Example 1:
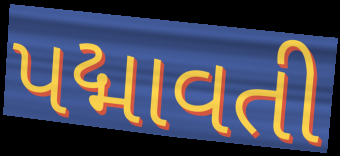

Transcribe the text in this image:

પદ્માવતી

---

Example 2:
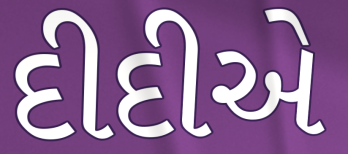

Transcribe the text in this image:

દીદીએ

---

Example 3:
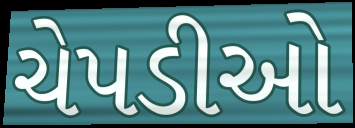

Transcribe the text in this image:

ચેપડીઓ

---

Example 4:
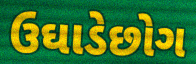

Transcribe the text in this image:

ઉઘાડેછોગ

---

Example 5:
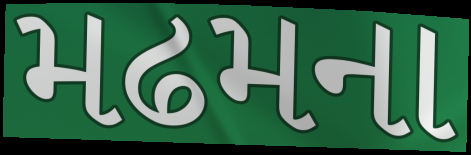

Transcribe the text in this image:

મઢમના